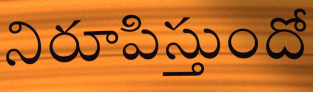
నిరూపిస్తుందో